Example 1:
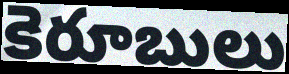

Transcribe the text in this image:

కెరూబులు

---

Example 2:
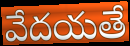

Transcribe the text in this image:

వేదయతే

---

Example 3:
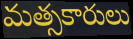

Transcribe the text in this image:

మత్సకారులు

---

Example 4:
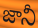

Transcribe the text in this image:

జానీ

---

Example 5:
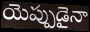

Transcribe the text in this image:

యెప్పుడైనా